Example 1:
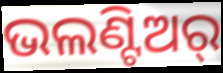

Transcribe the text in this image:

ଭଲଣ୍ଟିଅର୍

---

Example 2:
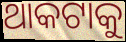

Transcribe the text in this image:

ଥାକଟାକୁ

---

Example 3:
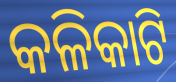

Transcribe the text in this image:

କଳିକାଟି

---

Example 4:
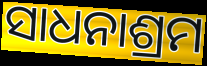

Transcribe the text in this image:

ସାଧନାଶ୍ରମ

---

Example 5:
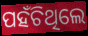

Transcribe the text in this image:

ପହଁଚିଥିଲେ